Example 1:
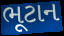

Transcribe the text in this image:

ભૂટાન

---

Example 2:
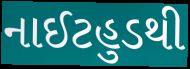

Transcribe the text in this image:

નાઈટહુડથી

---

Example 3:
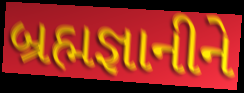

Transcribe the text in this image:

બ્રહ્મજ્ઞાનીને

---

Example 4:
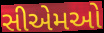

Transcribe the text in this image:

સીએમઓ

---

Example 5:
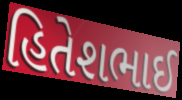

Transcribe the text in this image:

હિતેશભાઈ